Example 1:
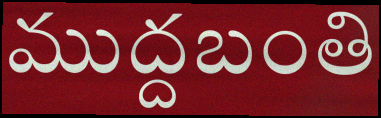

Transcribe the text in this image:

ముద్దబంతి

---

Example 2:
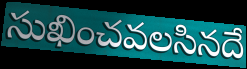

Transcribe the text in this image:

సుఖించవలసినదే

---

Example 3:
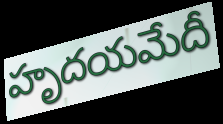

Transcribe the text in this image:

హృదయమేదీ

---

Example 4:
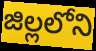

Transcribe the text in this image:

జిల్లలోని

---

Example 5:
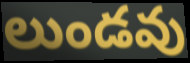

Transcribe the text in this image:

లుండవు